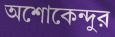
অশোকেন্দুর